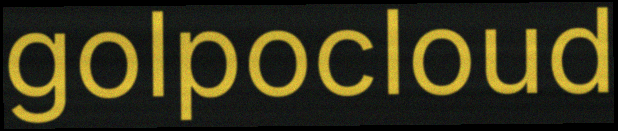
golpocloud